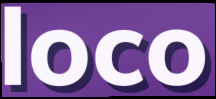
loco